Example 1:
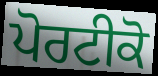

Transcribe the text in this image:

ਪੋਰਟੀਕੋ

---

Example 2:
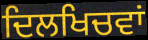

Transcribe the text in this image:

ਦਿਲਖਿਚਵਾਂ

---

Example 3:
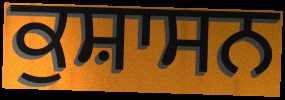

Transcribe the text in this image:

ਕੁਸ਼ਾਸਨ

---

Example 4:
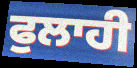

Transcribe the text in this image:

ਫੁਲਾਹੀ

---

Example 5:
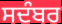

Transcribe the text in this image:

ਸਦੰਬਰ